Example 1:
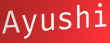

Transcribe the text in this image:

Ayushi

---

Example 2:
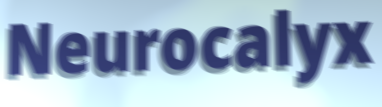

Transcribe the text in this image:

Neurocalyx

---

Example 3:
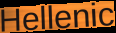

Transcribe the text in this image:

Hellenic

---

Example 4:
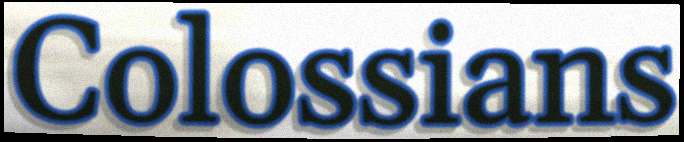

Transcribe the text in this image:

Colossians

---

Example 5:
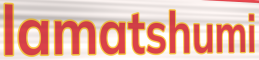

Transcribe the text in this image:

lamatshumi